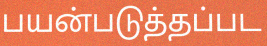
பயன்படுத்தப்பட